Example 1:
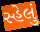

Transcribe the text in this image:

સ્હેલું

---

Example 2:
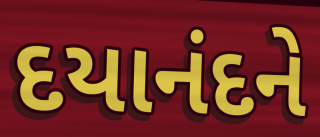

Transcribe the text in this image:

દયાનંદને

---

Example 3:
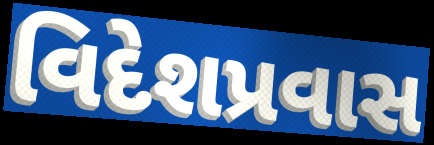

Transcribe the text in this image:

વિદેશપ્રવાસ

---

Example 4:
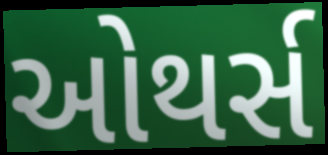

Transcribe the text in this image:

ઓથર્સ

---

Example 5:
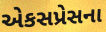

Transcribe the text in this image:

એકસપ્રેસના